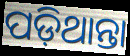
ପଡ଼ିଥାନ୍ତା